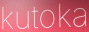
kutoka